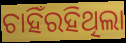
ଚାହିଁରହିଥିଲା